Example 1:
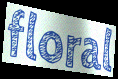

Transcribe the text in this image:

floral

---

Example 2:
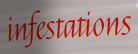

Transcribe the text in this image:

infestations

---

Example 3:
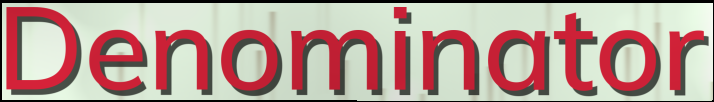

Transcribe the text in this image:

Denominator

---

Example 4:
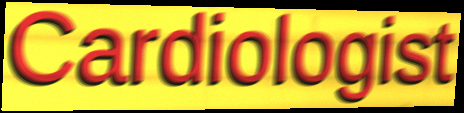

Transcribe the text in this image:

Cardiologist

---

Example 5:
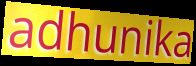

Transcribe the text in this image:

adhunika